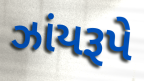
ઝાંયરૂપે